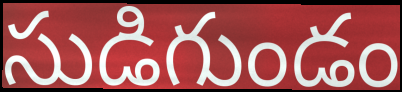
సుడిగుండం